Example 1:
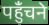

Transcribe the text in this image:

पहुंँचने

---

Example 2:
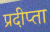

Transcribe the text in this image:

प्रदीप्ता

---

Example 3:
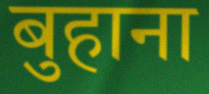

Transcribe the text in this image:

बुहाना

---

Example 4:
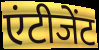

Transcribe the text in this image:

एंटीजेंट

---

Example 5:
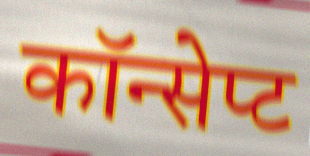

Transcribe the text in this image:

कॉन्सेप्ट